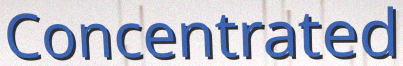
Concentrated